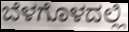
ಬೆಳಗೊಳದಲ್ಲಿ